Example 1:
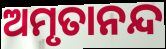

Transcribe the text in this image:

ଅମୃତାନନ୍ଦ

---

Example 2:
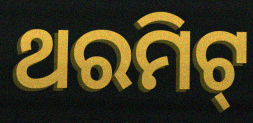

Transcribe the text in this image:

ଥରମିଟ୍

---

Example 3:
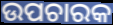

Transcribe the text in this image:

ଉପଚାରକ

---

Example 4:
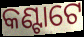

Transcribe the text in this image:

କଣ୍ଟାଟେ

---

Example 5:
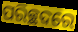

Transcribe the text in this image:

ପରିଚ୍ଛଦରେ